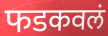
फडकवलं